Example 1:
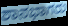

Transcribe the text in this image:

ಶಾನಭಾಗರು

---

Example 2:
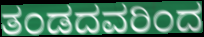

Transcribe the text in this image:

ತಂಡದವರಿಂದ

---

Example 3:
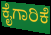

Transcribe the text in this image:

ಕೈಗಾರಿಕೆ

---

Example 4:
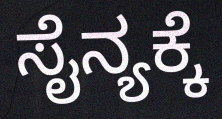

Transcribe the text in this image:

ಸೈನ್ಯಕ್ಕೆ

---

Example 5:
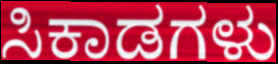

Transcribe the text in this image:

ಸಿಕಾಡಗಳು